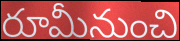
రూమీనుంచి